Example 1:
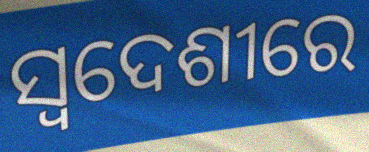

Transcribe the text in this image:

ସ୍ୱଦେଶୀରେ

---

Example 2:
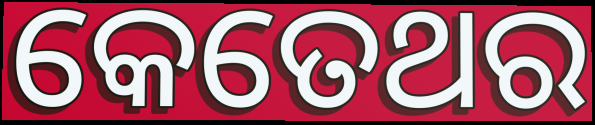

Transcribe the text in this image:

କେତେଥର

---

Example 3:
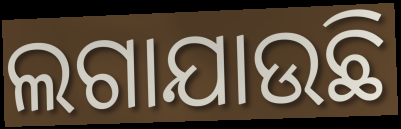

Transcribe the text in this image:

ଲଗାଯାଉଛି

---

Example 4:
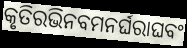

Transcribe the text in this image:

କୃତିରଭିନବମନର୍ଘରାଘବଂ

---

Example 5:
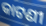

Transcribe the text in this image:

କାଟଣୀ